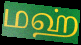
மஹ்